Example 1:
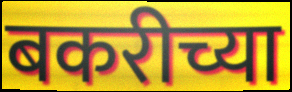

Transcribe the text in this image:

बकरीच्या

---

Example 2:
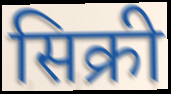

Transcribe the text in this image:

सिक्री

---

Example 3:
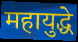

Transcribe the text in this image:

महायुद्धे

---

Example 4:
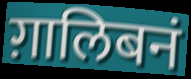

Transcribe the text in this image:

ग़ालिबनं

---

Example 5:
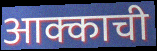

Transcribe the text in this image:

आक्काची